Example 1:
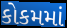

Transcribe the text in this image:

કોકમમાં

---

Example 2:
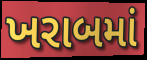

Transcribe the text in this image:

ખરાબમાં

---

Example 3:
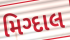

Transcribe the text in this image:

મિગ્દાલ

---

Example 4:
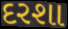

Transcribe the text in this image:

દરશા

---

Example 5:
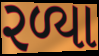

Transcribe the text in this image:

રળ્યા